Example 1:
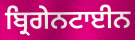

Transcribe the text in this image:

ਬ੍ਰਿਗੇਨਟਾਈਨ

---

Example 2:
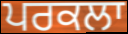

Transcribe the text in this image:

ਪਰਕਲਾ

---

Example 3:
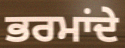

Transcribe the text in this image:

ਭਰਮਾਂਦੇ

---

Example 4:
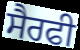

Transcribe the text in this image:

ਸੈਰਫੀ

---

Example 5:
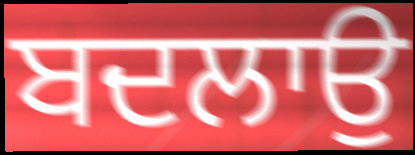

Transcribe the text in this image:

ਬਦਲਾਉ